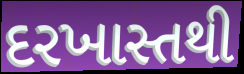
દરખાસ્તથી